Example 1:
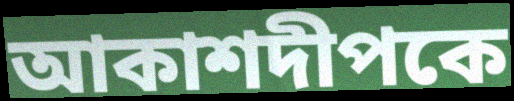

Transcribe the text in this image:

আকাশদীপকে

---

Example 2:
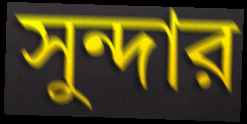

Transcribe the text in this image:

সুন্দার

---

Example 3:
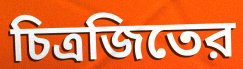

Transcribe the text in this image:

চিত্রজিতের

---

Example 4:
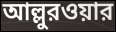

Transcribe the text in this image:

আল্লুরওয়ার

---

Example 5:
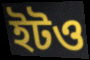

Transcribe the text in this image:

ইটও